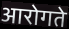
आरोगते